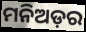
ମନିଅଡ଼ର